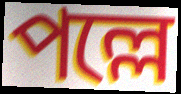
পল্লে